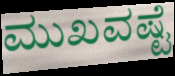
ಮುಖವಷ್ಟೆ